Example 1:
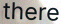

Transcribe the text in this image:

there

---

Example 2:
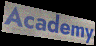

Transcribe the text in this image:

Academy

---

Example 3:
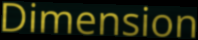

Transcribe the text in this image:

Dimension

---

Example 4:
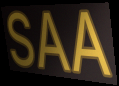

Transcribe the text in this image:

SAA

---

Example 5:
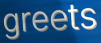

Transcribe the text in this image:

greets